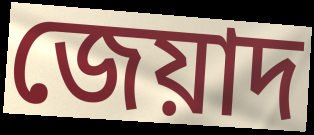
জেয়াদ